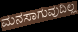
ಮನಸಾಗುವುದಿಲ್ಲ